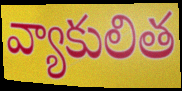
వ్యాకులిత